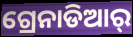
ଗ୍ରେନାଡିଆର୍